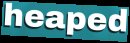
heaped